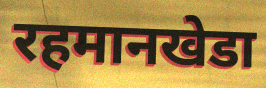
रहमानखेडा